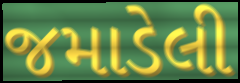
જમાડેલી